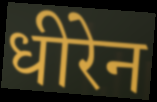
धीरेन